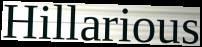
Hillarious